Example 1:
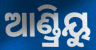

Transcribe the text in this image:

ଆଣ୍ଡ୍ରିୟୁ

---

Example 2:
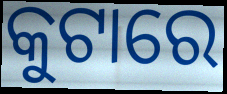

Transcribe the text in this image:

କୁଟାରେ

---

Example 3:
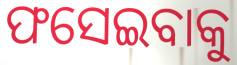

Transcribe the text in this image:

ଫସେଇବାକୁ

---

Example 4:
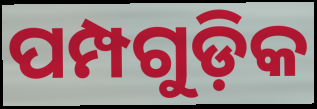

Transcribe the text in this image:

ପମ୍ପଗୁଡ଼ିକ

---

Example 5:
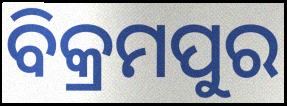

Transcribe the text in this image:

ବିକ୍ରମପୁର